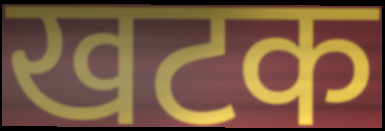
खटक